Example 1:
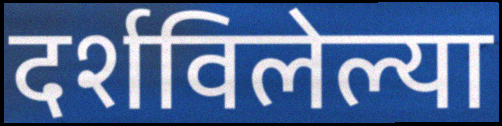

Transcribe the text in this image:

दर्शविलेल्या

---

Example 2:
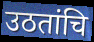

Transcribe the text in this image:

उठतांचि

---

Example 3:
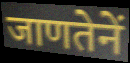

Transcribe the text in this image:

जाणतेनें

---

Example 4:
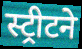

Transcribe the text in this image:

स्ट्रीटने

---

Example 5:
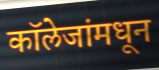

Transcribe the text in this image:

कॉलेजांमधून